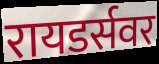
रायडर्सवर